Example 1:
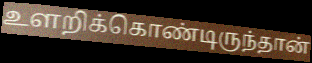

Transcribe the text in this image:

உளறிக்கொண்டிருந்தான்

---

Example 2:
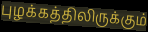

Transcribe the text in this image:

புழக்கத்திலிருக்கும்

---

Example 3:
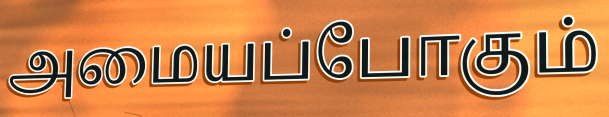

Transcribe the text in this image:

அமையப்போகும்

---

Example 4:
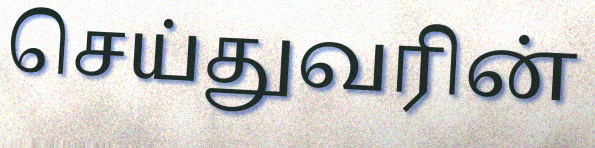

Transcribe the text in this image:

செய்துவரின்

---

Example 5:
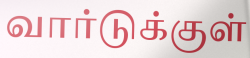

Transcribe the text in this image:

வார்டுக்குள்